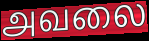
அவலை